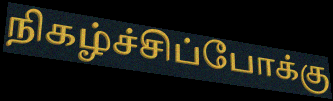
நிகழ்ச்சிப்போக்கு